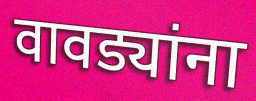
वावड्यांना